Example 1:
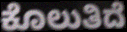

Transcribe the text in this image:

ಕೊಲುತಿದೆ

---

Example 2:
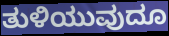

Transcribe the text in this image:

ತುಳಿಯುವುದೂ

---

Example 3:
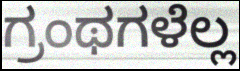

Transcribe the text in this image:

ಗ್ರಂಥಗಳೆಲ್ಲ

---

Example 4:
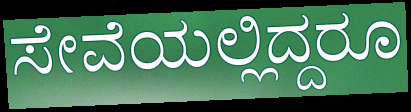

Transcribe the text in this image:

ಸೇವೆಯಲ್ಲಿದ್ದರೂ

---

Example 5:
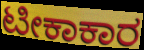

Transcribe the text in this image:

ಟೀಕಾಕಾರ